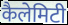
कैलेमिटी